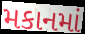
મકાનમાં